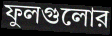
ফুলগুলোর